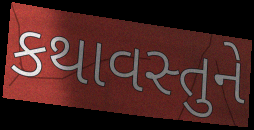
કથાવસ્તુને